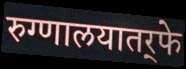
रुग्णालयातर्फे